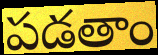
పడతాం